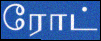
ரோட்